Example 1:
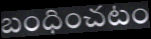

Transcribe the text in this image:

బంధించటం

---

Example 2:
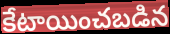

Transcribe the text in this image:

కేటాయించబడిన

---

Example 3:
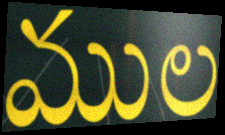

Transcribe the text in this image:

ముల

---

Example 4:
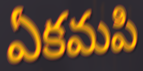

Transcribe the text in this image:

ఏకమపి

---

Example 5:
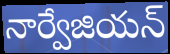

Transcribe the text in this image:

నార్వేజియన్